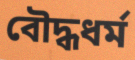
বৌদ্ধধর্ম